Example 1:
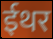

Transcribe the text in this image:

ईथर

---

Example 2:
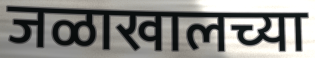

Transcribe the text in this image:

जळाखालच्या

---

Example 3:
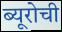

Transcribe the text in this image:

ब्यूरोची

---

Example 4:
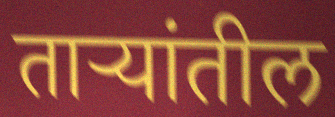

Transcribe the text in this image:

ताऱ्यांतील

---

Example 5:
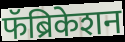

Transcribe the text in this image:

फॅब्रिकेशन